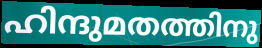
ഹിന്ദുമതത്തിനു